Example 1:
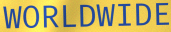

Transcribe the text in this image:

WORLDWIDE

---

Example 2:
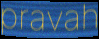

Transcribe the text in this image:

pravah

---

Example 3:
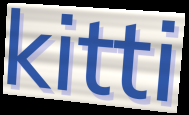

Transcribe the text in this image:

kitti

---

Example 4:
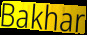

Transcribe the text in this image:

Bakhar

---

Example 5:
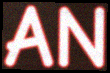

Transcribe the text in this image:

AN